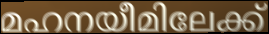
മഹനയീമിലേക്ക്